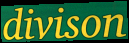
divison